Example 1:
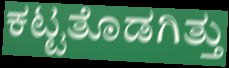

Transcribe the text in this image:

ಕಟ್ಟತೊಡಗಿತ್ತು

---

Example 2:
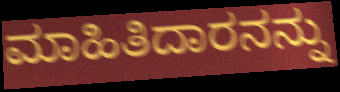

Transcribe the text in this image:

ಮಾಹಿತಿದಾರನನ್ನು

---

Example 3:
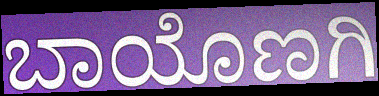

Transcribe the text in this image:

ಬಾಯೊಣಗಿ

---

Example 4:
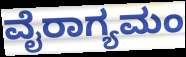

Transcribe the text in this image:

ವೈರಾಗ್ಯಮಂ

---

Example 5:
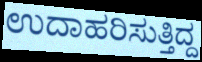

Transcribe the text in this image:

ಉದಾಹರಿಸುತ್ತಿದ್ದ